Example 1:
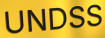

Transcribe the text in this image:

UNDSS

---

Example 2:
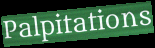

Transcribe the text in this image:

Palpitations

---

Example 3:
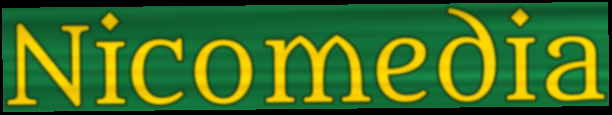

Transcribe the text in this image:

Nicomedia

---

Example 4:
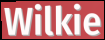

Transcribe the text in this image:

Wilkie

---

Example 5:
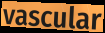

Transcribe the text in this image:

vascular